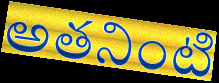
అతనింటి